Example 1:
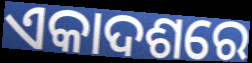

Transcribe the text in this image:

ଏକାଦଶରେ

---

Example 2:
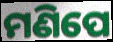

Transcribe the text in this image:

ମଣିପେ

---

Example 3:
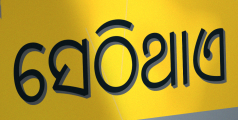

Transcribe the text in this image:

ସେଠିଥାଏ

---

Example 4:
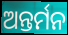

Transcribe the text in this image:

ଅନ୍ତର୍ମନ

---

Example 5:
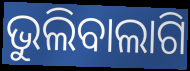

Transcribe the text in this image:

ଭୁଲିବାଲାଗି